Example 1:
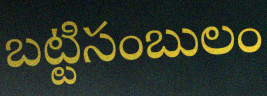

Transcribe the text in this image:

బట్టిసంబులం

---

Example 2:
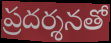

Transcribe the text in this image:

ప్రదర్శనతో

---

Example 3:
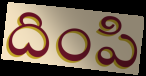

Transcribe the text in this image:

దింపి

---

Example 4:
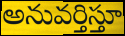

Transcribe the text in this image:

అనువర్తిస్తూ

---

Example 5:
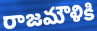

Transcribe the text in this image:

రాజమౌళికి